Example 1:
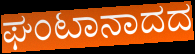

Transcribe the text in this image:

ಘಂಟಾನಾದದ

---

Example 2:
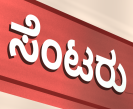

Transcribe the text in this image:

ಸೆಂಟರು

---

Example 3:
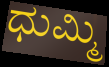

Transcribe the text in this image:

ಧುಮ್ಮಿ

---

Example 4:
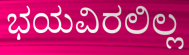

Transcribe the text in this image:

ಭಯವಿರಲಿಲ್ಲ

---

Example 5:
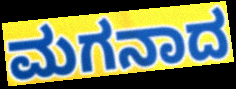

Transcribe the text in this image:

ಮಗನಾದ